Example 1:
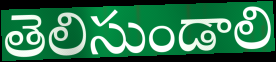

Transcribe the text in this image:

తెలిసుండాలి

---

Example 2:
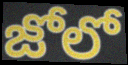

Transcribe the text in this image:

జోలో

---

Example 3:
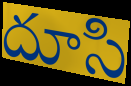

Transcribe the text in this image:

దూసి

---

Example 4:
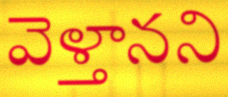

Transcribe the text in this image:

వెళ్తానని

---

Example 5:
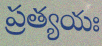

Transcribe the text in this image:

ప్రత్యయః